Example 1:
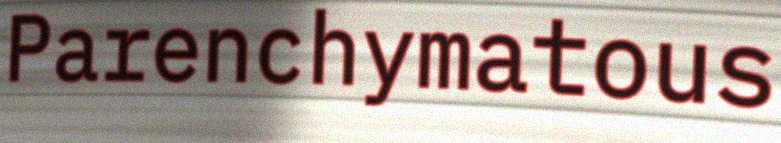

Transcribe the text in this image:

Parenchymatous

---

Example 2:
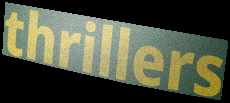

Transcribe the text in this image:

thrillers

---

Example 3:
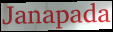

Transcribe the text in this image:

Janapada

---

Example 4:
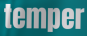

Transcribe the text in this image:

temper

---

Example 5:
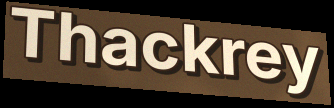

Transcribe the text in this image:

Thackrey